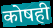
कोषही